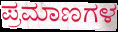
ಪ್ರಮಾಣಗಳ